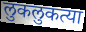
लुकलुकत्या